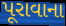
પૂરાવાના